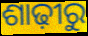
ଶାଢ଼ୀରୁ